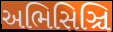
અભિસિઞ્ચિ